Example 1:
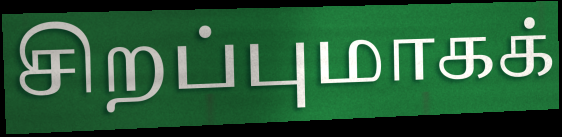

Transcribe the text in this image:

சிறப்புமாகக்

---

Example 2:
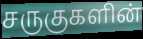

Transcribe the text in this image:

சருகுகளின்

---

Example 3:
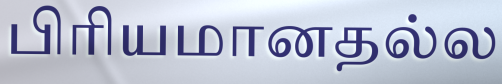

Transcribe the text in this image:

பிரியமானதல்ல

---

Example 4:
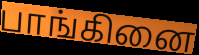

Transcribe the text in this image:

பாங்கினை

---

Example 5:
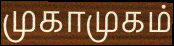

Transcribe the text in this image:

முகாமுகம்